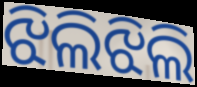
ଝିଲିଝିଲି